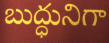
బుద్ధునిగా